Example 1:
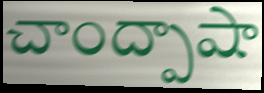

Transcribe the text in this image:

చాంద్పాషా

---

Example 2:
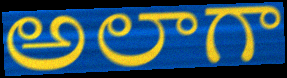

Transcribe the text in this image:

అలాగా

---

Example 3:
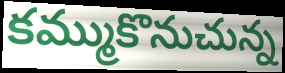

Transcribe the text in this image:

కమ్ముకొనుచున్న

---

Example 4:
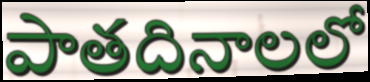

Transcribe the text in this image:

పాతదినాలలో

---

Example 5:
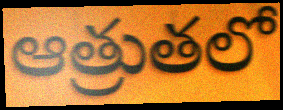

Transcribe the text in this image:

ఆత్రుతలో